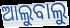
ଆଲୁବାଲୁ